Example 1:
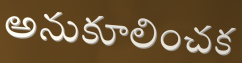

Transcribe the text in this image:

అనుకూలించక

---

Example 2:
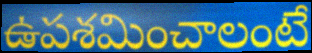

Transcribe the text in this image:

ఉపశమించాలంటే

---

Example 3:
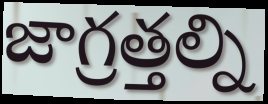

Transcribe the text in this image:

జాగ్రత్తల్ని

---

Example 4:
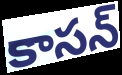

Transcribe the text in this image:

కాసన్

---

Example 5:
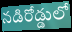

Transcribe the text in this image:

నడిరోడ్డులో